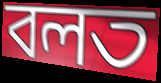
বলত